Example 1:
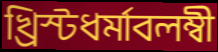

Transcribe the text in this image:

খ্রিস্টধর্মাবলম্বী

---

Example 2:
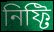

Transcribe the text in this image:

নিফ্টি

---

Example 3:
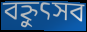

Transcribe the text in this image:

বহ্নুৎসব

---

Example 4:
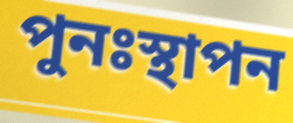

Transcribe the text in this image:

পুনঃস্থাপন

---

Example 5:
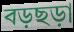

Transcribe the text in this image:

বড়ছড়া